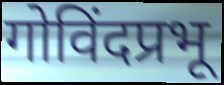
गोविंदप्रभू